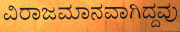
ವಿರಾಜಮಾನವಾಗಿದ್ದವು